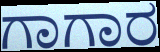
ಗಾಗಾರ